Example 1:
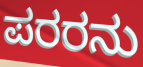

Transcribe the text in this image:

ಪರರನು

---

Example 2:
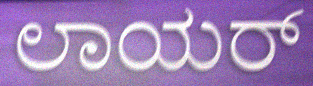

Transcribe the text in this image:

ಲಾಯರ್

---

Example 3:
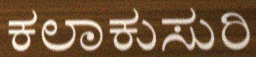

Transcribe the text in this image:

ಕಲಾಕುಸುರಿ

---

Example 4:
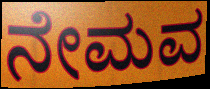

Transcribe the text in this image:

ನೇಮವ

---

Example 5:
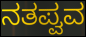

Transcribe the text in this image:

ನತಪ್ವವ